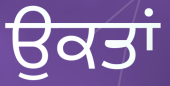
ਉਕਤਾਂ